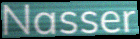
Nasser